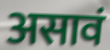
असावं